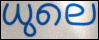
ധുലെ